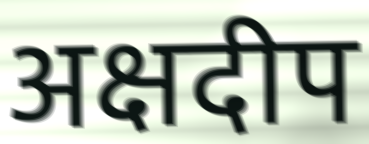
अक्षदीप